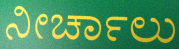
ನೀರ್ಚಾಲು